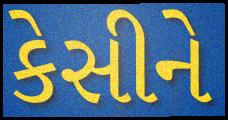
કેસીને